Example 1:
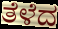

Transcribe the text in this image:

ತೆಳೆದ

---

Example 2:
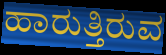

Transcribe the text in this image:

ಹಾರುತ್ತಿರುವ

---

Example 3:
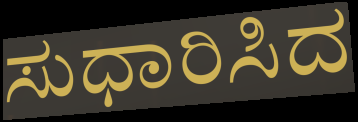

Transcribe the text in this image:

ಸುಧಾರಿಸಿದ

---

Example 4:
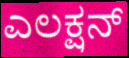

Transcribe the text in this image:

ಎಲಕ್ಷನ್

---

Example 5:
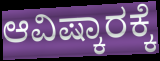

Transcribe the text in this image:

ಆವಿಷ್ಕಾರಕ್ಕೆ